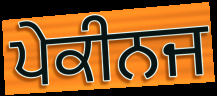
ਪੇਕੀਨਜ